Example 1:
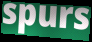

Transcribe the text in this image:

spurs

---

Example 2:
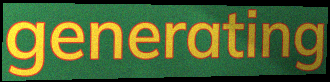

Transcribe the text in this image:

generating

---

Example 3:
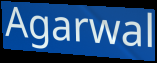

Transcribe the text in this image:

Agarwal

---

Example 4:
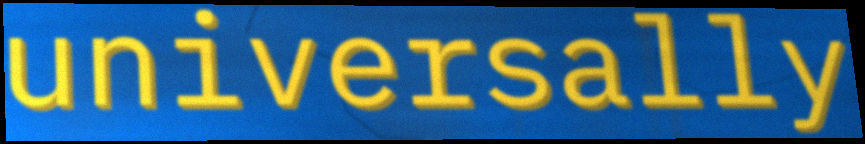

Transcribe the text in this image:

universally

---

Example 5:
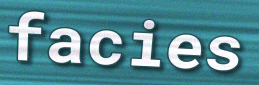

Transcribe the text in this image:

facies